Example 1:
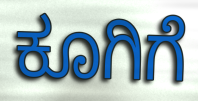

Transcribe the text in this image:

ಕೂಗಿಗೆ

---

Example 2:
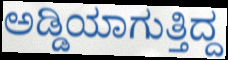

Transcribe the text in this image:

ಅಡ್ಡಿಯಾಗುತ್ತಿದ್ದ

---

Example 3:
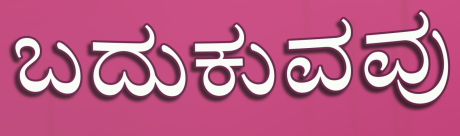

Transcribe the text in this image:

ಬದುಕುವವು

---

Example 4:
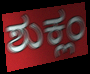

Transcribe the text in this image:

ಶುಕ್ಲಂ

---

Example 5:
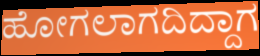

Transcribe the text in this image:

ಹೋಗಲಾಗದಿದ್ದಾಗ